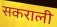
सकराली